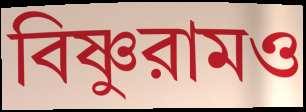
বিষ্ণুরামও